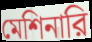
মেশিনারি